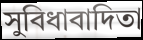
সুবিধাবাদিতা